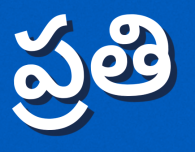
ప్రతి